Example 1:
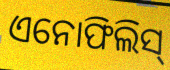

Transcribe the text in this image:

ଏନୋଫିଲିସ୍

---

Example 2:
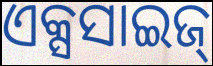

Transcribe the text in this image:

ଏକ୍ସସାଇଜ୍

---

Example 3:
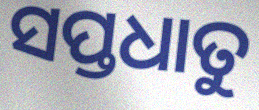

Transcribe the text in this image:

ସପ୍ତଧାତୁ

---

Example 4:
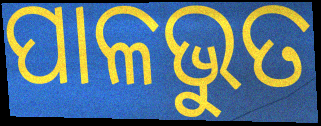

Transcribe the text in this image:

ପାଳଭୁତ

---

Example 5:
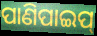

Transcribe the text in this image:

ପାଣିପାଇପ୍